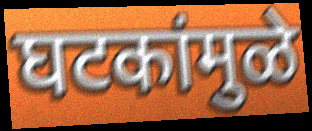
घटकांमुळे